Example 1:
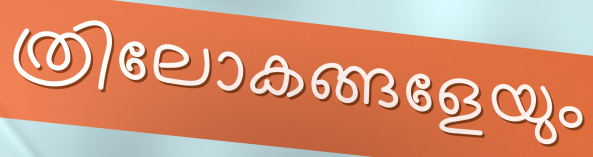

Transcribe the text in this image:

ത്രിലോകങ്ങളേയും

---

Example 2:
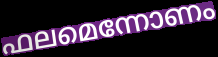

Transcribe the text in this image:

ഫലമെന്നോണം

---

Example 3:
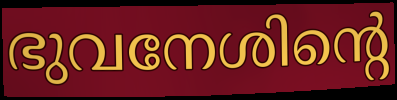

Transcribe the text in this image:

ഭുവനേശിന്റെ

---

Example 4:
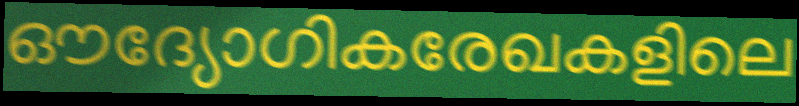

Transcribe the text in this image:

ഔദ്യോഗികരേഖകളിലെ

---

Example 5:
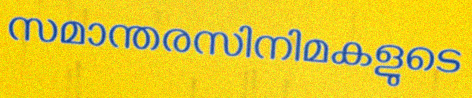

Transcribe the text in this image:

സമാന്തരസിനിമകളുടെ